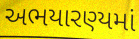
અભયારણ્યમાં